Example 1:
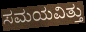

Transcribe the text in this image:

ಸಮಯವಿತ್ತು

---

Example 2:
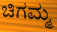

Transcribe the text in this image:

ಚಿಗಮ್ಮ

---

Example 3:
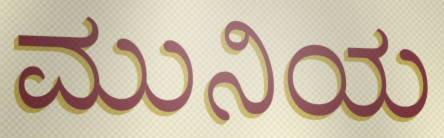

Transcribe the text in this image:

ಮುನಿಯ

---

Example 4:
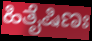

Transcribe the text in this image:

ಹಿತೈಷಿಣಃ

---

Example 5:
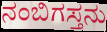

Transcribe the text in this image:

ನಂಬಿಗಸ್ತನು